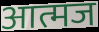
आत्मज